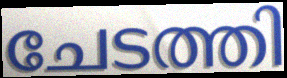
ചേടത്തി